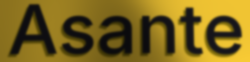
Asante